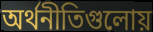
অর্থনীতিগুলোয়